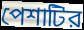
পেশাটির